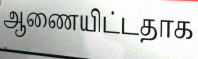
ஆணையிட்டதாக